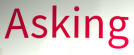
Asking